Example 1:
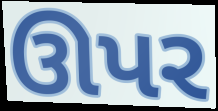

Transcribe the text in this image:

ઊપર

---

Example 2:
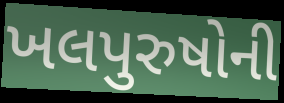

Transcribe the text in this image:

ખલપુરુષોની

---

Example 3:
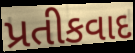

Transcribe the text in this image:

પ્રતીકવાદ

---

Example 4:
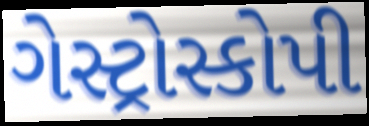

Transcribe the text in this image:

ગેસ્ટ્રોસ્કોપી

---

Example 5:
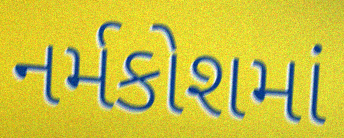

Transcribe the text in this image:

નર્મકોશમાં